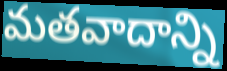
మతవాదాన్ని